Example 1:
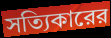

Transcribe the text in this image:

সত্যিকারের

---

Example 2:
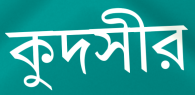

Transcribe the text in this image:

কুদসীর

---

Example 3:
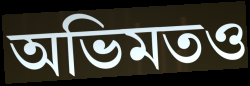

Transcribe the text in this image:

অভিমতও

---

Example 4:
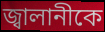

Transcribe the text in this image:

জ্বালানীকে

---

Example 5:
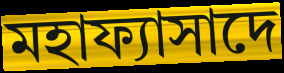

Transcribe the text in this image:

মহাফ্যাসাদে